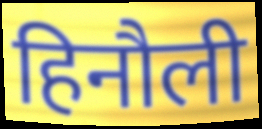
हिनौली